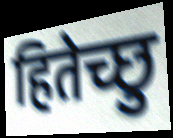
हितेच्छु